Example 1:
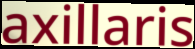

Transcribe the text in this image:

axillaris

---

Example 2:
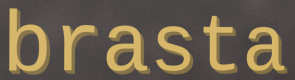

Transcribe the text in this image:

brasta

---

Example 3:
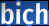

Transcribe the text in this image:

bich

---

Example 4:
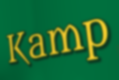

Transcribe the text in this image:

Kamp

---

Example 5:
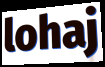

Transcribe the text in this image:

lohaj